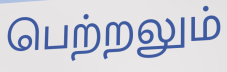
பெற்றலும்